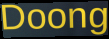
Doong